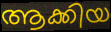
ആക്കിയ